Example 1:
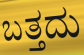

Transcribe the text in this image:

ಬತ್ತದು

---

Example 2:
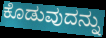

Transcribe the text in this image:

ಕೊಡುವುದನ್ನು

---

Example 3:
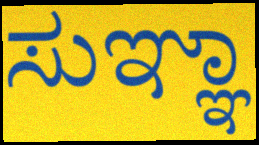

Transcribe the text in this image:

ಸುಞ್ಞಾ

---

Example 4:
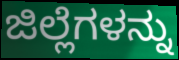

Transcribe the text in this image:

ಜಿಲ್ಲೆಗಳನ್ನು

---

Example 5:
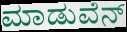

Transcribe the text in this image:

ಮಾಡುವೆನ್